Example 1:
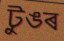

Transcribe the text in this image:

টুঙৰ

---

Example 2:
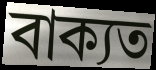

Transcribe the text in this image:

বাক্যত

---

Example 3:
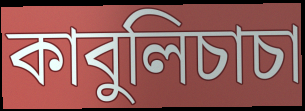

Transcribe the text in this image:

কাবুলিচাচা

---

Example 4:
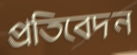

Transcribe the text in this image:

প্ৰতিবেদন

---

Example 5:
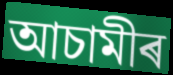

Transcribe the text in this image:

আচামীৰ